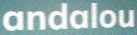
andalou